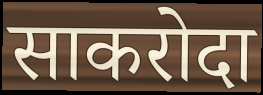
साकरोदा